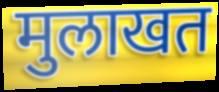
मुलाखत